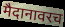
मैदानावरच